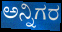
ಅನ್ನಿಗರ